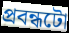
প্ৰবন্ধটো